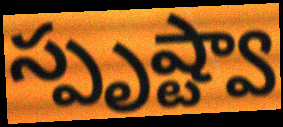
స్పృష్ట్వా